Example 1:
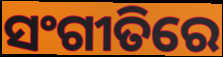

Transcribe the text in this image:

ସଂଗୀତିରେ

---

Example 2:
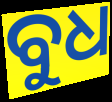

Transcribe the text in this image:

ବୁଧ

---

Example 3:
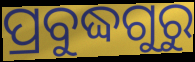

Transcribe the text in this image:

ପ୍ରବୁଦ୍ଧଗୁରୁ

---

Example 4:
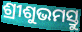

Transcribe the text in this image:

ଶ୍ରୀଶୁଭମସ୍ତୁ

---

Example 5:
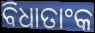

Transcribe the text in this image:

ବିଧାତାଂକ